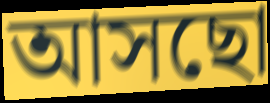
আসছো